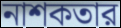
নাশকতার